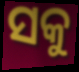
ସକୁ